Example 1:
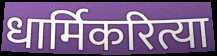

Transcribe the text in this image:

धार्मिकरित्या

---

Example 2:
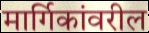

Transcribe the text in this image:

मार्गिकांवरील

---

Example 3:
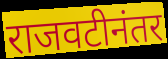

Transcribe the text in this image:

राजवटीनंतर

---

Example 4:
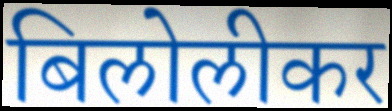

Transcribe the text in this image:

बिलोलीकर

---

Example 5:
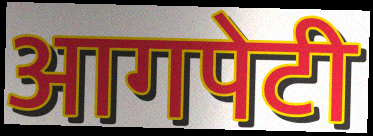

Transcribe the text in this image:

आगपेटी